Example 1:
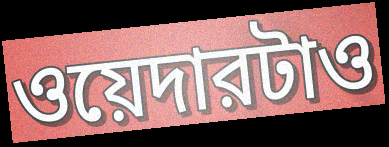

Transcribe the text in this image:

ওয়েদারটাও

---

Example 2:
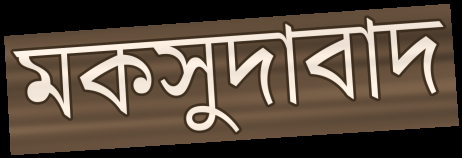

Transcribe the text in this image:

মকসুদাবাদ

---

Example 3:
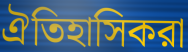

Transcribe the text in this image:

ঐতিহাসিকরা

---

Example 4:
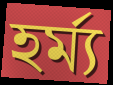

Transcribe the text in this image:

হর্ম্য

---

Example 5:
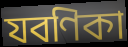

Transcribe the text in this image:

যবণিকা